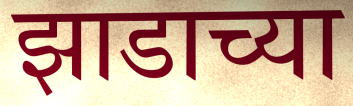
झाडाच्या